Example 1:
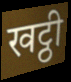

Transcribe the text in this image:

खट्ठी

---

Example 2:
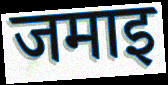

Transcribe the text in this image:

जमाइ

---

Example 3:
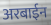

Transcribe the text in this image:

अरबाईन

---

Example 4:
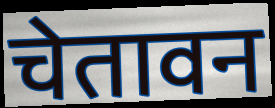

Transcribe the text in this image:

चेतावन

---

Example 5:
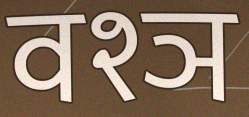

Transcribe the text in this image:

वश्ञ